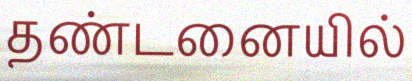
தண்டனையில்